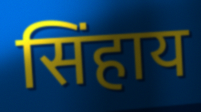
सिंहाय